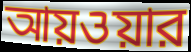
আয়ওয়ার